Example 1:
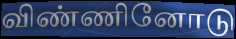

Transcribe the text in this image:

விண்ணினோடு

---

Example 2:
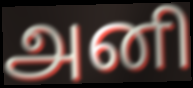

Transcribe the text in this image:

அனி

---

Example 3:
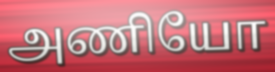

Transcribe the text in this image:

அணியோ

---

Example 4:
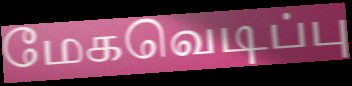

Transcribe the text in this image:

மேகவெடிப்பு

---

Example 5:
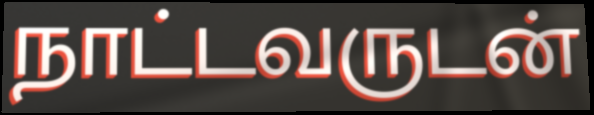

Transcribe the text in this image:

நாட்டவருடன்